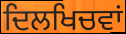
ਦਿਲਖਿਚਵਾਂ